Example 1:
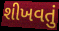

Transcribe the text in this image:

શીખવતું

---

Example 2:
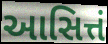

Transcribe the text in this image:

આસિત્તં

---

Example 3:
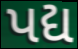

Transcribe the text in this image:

પદ્ય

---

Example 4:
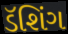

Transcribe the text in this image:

ડૅશિંગ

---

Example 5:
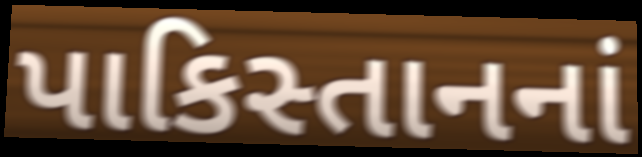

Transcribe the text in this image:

પાકિસ્તાનનાં